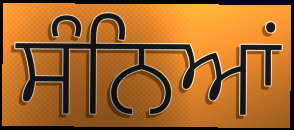
ਸੰਨਿਆਂ